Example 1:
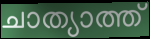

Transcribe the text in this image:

ചാത്യാത്ത്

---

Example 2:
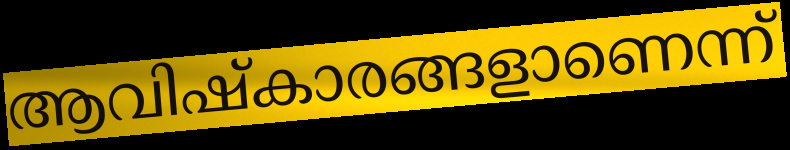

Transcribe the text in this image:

ആവിഷ്കാരങ്ങളാണെന്ന്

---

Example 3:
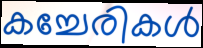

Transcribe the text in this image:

കച്ചേരികൾ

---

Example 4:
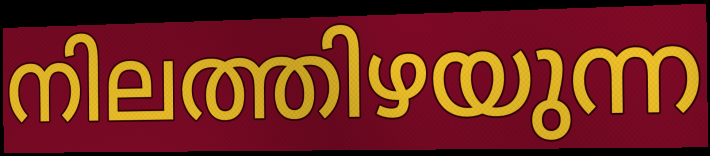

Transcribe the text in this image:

നിലത്തിഴയുന്ന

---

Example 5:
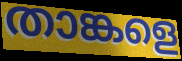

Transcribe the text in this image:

താങ്കളെ